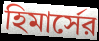
হিমার্সের